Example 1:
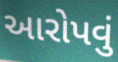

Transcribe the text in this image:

આરોપવું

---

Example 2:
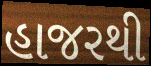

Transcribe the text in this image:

હાજરથી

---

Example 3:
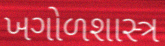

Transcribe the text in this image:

ખગોળશાસ્ત્ર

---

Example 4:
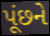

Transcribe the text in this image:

પૂંછને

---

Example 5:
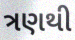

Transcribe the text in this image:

ત્રણથી